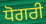
ਧੋਗਰੀ